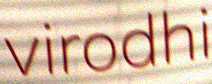
virodhi